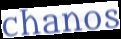
chanos